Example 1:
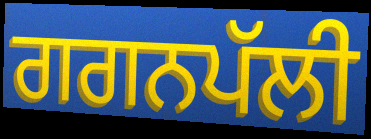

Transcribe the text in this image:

ਗਗਨਪੱਲੀ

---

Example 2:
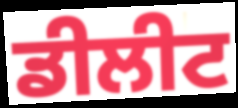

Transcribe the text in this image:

ਡੀਲੀਟ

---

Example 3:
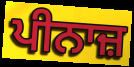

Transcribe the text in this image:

ਪੀਨਾਜ਼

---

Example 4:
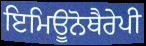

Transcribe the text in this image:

ਇਮਿਊਨੋਥੈਰੇਪੀ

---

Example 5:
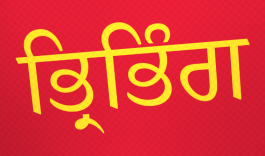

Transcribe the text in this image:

ਭ੍ਰਿਭਿੰਗ